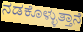
ನಡಕೊಳ್ಳುತ್ತಾನೆ